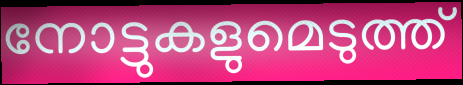
നോട്ടുകളുമെടുത്ത്